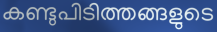
കണ്ടുപിടിത്തങ്ങളുടെ